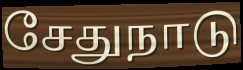
சேதுநாடு